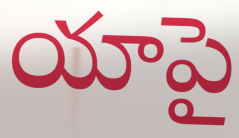
యాపై